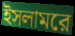
ইসলামরে